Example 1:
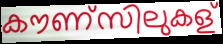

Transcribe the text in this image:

കൗണ്സിലുകള്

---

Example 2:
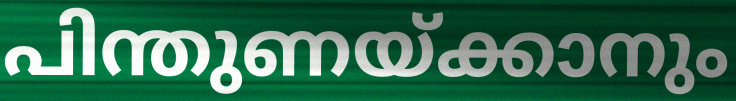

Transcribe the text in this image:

പിന്തുണയ്ക്കാനും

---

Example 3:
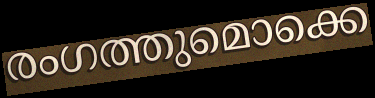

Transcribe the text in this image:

രംഗത്തുമൊക്കെ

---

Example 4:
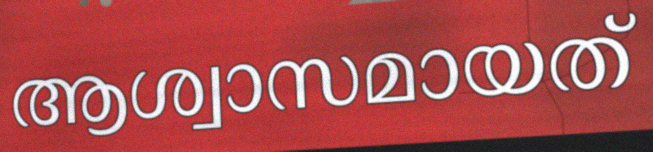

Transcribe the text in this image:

ആശ്വാസമായത്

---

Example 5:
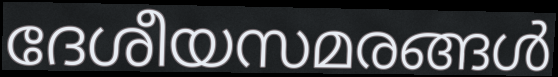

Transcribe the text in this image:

ദേശീയസമരങ്ങൾ